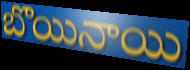
బొయినాయి